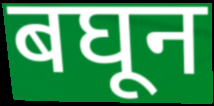
बघून